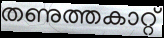
തണുത്തകാറ്റ്